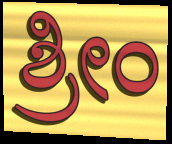
ಶ್ರೀಂ